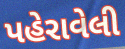
પહેરાવેલી